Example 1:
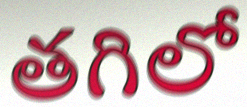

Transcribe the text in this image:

తగిలో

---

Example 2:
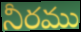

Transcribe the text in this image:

నీరము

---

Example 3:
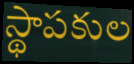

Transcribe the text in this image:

స్థాపకుల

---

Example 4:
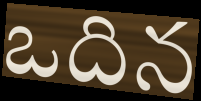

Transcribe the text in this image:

ఒదిన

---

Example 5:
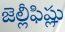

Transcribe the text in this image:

జెల్లీఫిష్లు